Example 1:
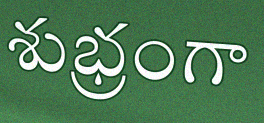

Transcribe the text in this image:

శుభ్రంగా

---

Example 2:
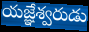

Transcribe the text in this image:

యజ్ఞేశ్వరుడు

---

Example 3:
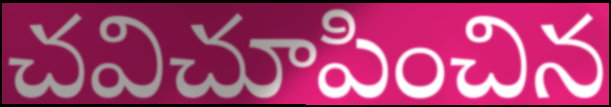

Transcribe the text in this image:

చవిచూపించిన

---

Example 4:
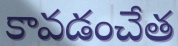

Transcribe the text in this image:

కావడంచేత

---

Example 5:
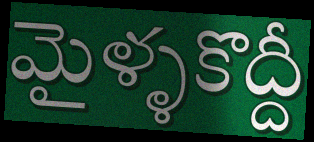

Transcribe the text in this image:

మైళ్ళకొద్దీ